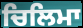
ਚਿਲਿਮਾ